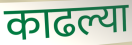
काढल्या